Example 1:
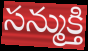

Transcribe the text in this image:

సన్ముక్తి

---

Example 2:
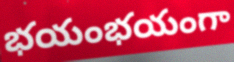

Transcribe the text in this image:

భయంభయంగా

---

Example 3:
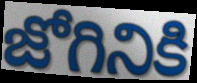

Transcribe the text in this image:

జోగినికి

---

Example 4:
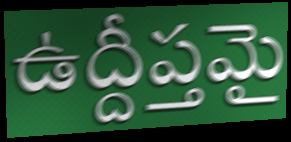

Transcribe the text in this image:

ఉద్దీప్తమై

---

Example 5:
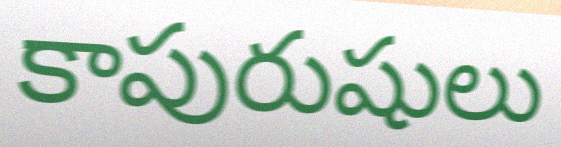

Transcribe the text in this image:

కాపురుషులు